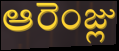
ఆరెంజ్లు